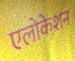
एलोकेशन